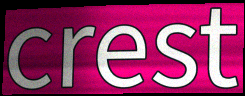
crest